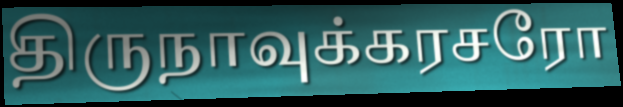
திருநாவுக்கரசரோ